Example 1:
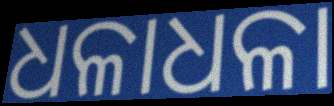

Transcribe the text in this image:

ଧଳାଧଳା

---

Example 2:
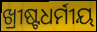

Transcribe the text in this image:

ଖ୍ରୀଷ୍ଟଧର୍ମୀୟ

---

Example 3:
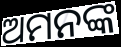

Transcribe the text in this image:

ଅମନଙ୍କ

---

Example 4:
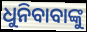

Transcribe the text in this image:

ଧୁନିବାବାଙ୍କୁ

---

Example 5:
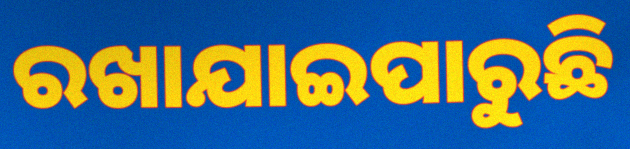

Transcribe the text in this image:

ରଖାଯାଇପାରୁଛି